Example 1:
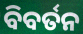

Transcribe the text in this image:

ବିବର୍ତନ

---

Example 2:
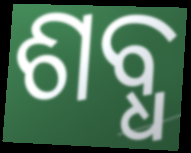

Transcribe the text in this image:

ଶବ୍ଧ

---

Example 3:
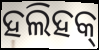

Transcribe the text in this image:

ହଲିହକ୍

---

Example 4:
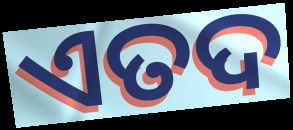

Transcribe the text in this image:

ଏତଦ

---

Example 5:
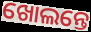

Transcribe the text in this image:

ଖୋଲନ୍ତେ